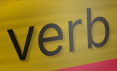
verb